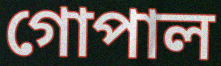
গোপাল